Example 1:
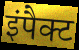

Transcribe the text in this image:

इंपैक्ट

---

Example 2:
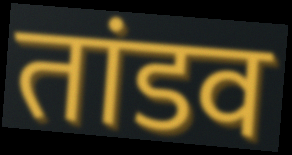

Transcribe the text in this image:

तांडव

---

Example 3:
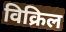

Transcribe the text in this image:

विक्रिल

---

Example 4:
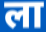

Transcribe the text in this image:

ला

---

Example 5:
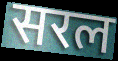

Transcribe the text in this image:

सरल